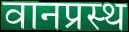
वानप्रस्थ